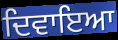
ਦਿਵਾਇਆ